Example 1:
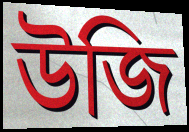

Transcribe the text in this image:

উজি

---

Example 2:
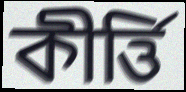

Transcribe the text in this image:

কীৰ্ত্তি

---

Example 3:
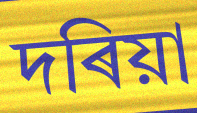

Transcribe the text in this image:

দৰিয়া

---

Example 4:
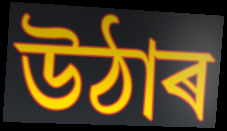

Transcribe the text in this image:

উঠাৰ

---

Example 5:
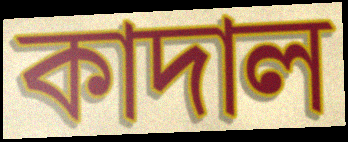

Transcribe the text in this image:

কাদাল